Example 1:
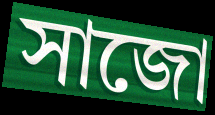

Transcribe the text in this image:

সাজো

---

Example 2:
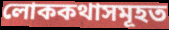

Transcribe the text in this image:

লোককথাসমূহত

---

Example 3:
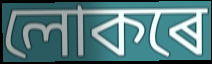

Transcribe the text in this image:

লোকৰে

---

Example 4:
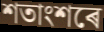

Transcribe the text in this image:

শতাংশৰে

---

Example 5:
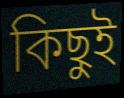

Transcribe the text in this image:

কিছুই